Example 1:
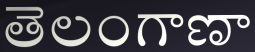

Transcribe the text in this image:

తెలంగాణా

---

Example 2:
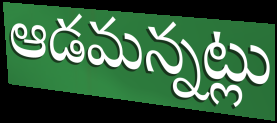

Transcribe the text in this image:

ఆడమన్నట్లు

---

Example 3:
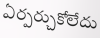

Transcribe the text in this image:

ఏర్పర్చుకోలేదు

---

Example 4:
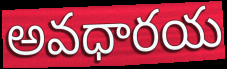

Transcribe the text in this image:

అవధారయ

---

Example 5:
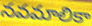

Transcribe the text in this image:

నవమాలికా